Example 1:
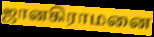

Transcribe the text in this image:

ஜானகிராமனை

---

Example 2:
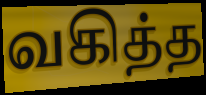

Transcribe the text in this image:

வகித்த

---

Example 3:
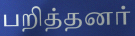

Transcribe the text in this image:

பறித்தனர்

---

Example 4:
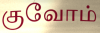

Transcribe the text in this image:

குவோம்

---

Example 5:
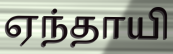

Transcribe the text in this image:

ஏந்தாயி